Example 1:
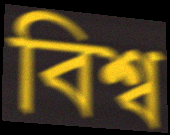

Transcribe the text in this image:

বিশ্ব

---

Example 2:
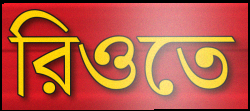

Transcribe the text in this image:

রিওতে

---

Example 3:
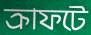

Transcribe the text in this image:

ক্রাফটে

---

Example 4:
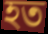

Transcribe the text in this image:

হত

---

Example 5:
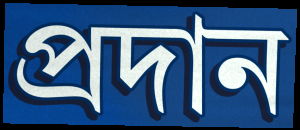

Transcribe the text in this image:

প্রদান